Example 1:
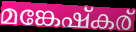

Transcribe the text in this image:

മങ്കേഷ്കര്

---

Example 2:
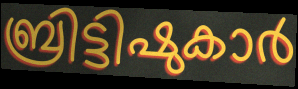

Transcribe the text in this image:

ബ്രിട്ടിഷുകാർ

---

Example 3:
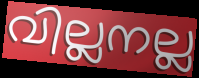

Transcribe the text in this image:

വില്ലനല്ല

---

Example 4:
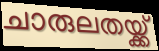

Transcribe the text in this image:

ചാരുലതയ്ക്ക്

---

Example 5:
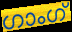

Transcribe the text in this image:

ഗാംഗ്